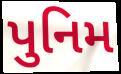
પુનિમ